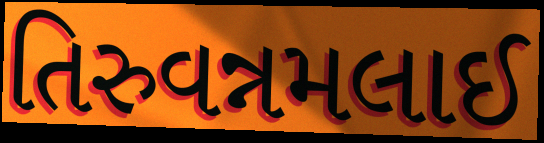
તિરુવન્નમલાઈ